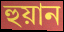
হুয়ান